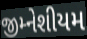
જીમ્નેશીયમ